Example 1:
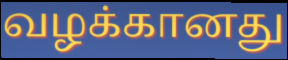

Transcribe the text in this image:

வழக்கானது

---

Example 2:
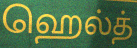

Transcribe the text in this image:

ஹெல்த்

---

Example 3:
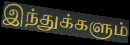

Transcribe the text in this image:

இந்துக்களும்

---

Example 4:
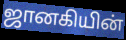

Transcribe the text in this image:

ஜானகியின்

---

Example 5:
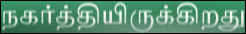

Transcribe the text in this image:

நகர்த்தியிருக்கிறது